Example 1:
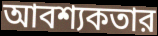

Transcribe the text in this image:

আবশ্যকতার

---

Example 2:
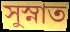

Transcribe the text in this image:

সুস্নাত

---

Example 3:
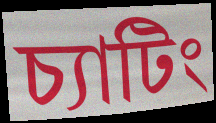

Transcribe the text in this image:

চ্যাটিং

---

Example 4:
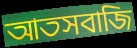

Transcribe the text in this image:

আতসবাজি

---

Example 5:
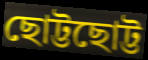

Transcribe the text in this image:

ছোট্টছোট্ট